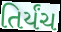
તિર્યંચ